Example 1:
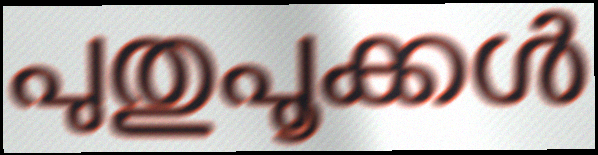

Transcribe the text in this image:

പുതുപൂക്കൾ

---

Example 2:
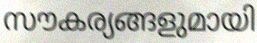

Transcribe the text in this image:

സൗകര്യങ്ങളുമായി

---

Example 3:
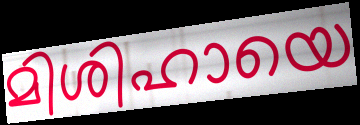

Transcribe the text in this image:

മിശിഹായെ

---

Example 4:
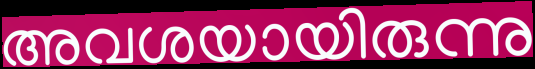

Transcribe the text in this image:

അവശയായിരുന്നു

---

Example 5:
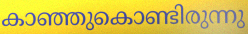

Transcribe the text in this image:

കാഞ്ഞുകൊണ്ടിരുന്നു